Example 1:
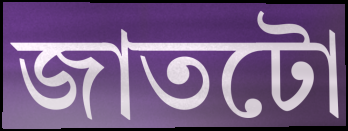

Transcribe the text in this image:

জাতটো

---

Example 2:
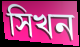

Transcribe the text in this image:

সিখন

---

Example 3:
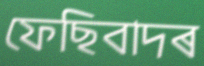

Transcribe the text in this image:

ফেছিবাদৰ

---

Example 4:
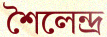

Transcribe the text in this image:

শৈলেন্দ্ৰ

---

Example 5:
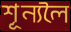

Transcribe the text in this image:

শূন্যলৈ